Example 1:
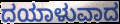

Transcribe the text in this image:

ದಯಾಳುವಾದ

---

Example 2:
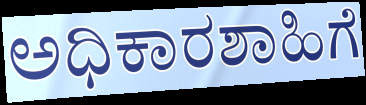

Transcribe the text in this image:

ಅಧಿಕಾರಶಾಹಿಗೆ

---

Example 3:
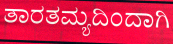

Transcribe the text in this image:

ತಾರತಮ್ಯದಿಂದಾಗಿ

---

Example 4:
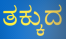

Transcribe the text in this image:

ತಕ್ಕುದ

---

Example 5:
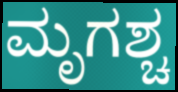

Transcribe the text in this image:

ಮೃಗಶ್ಚ